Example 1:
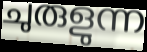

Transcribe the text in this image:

ചുരുളുന്ന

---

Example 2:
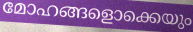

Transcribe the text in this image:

മോഹങ്ങളൊക്കെയും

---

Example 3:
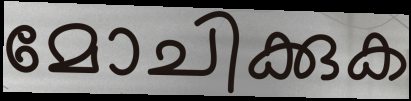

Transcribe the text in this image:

മോചിക്കുക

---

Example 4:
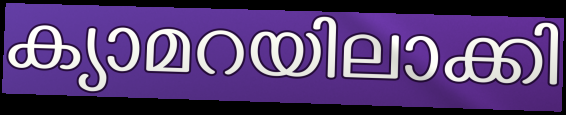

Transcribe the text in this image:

ക്യാമറയിലാക്കി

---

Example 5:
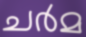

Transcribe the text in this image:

ചർമ